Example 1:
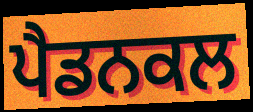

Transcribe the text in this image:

ਪੈਡਨਕਲ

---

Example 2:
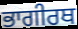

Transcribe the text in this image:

ਭਾਗੀਰਥ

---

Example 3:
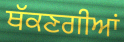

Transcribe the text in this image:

ਥੱਕਣਗੀਆਂ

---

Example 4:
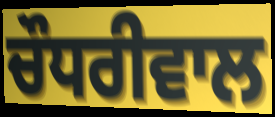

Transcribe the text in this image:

ਚੌਧਰੀਵਾਲ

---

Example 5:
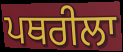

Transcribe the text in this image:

ਪਥਰੀਲਾ